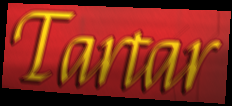
Tartar